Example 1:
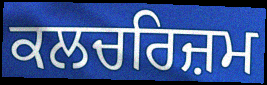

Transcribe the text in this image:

ਕਲਚਰਿਜ਼ਮ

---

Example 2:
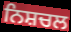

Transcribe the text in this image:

ਨਿਸ਼ਚਲ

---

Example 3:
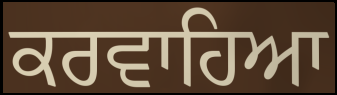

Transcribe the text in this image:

ਕਰਵਾਹਿਆ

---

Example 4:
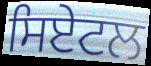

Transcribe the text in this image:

ਸਿਏਟਲ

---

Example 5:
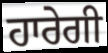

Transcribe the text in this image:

ਹਾਰੇਗੀ